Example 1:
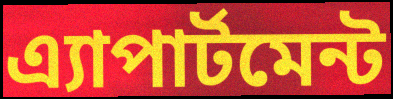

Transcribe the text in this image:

এ্যাপার্টমেন্ট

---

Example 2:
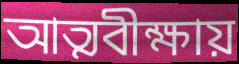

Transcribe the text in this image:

আত্মবীক্ষায়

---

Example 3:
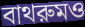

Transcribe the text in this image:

বাথরুমও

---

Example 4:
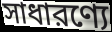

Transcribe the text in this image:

সাধারণ্যে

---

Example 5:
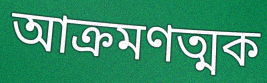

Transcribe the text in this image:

আক্রমণত্মক